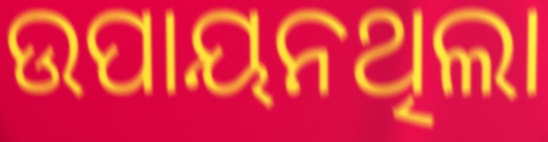
ଉପାୟନଥିଲା